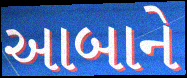
આબાને